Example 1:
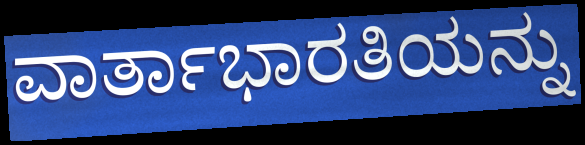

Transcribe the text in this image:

ವಾರ್ತಾಭಾರತಿಯನ್ನು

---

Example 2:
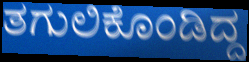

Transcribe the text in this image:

ತಗುಲಿಕೊಂಡಿದ್ದ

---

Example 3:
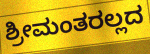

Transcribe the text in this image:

ಶ್ರೀಮಂತರಲ್ಲದ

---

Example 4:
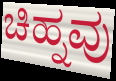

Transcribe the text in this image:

ಚಿಹ್ನವು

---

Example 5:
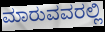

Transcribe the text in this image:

ಮಾರುವವರಲ್ಲಿ